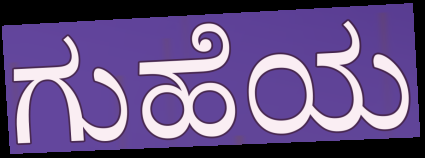
ಗುಹೆಯ